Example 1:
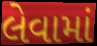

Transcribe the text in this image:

લેવામાં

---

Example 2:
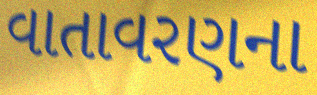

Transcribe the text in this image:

વાતાવરણના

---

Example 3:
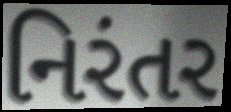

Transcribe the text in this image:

નિરંતર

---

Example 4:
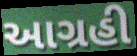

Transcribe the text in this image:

આગ્રહી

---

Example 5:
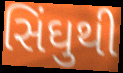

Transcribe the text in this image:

સિંઘુથી